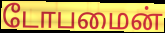
டோபமைன்